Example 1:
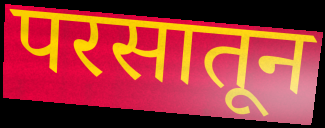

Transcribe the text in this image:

परसातून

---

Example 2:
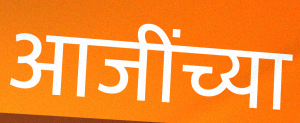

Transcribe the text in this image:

आजींच्या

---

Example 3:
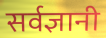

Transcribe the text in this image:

सर्वज्ञानी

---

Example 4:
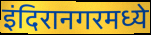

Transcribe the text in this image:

इंदिरानगरमध्ये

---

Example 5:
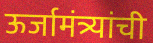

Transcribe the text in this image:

ऊर्जामंत्र्यांची